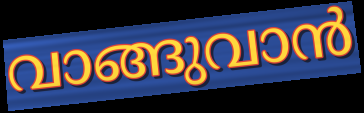
വാങ്ങുവാൻ